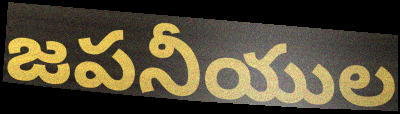
జపనీయుల